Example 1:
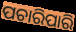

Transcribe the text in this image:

ପଚାରିପାରି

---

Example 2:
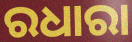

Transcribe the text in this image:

ରଧାରା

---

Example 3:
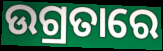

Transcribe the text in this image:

ଉଗ୍ରତାରେ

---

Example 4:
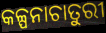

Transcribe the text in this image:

କଳ୍ପନାଚାତୁରୀ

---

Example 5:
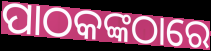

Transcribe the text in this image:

ପାଠକଙ୍କଠାରେ